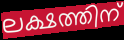
ലക്ഷത്തിന്